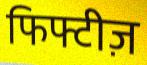
फिफ्टीज़